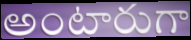
అంటారుగా